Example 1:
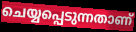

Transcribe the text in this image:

ചെയ്യപ്പെടുന്നതാണ്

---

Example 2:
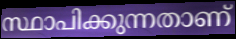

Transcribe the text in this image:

സ്ഥാപിക്കുന്നതാണ്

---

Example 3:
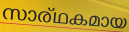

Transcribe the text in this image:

സാര്ഥകമായ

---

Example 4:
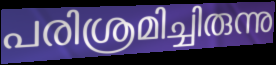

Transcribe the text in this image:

പരിശ്രമിച്ചിരുന്നു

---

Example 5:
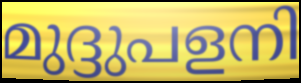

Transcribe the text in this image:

മുദ്ദുപളനി